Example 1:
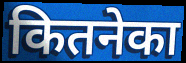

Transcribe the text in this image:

कितनेका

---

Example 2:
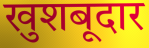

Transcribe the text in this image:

खुशबूदार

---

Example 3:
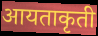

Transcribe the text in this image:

आयताकृती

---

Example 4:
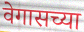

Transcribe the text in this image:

वेगासच्या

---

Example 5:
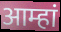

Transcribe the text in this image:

आम्हां